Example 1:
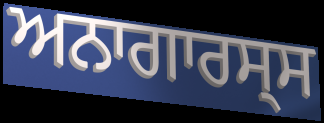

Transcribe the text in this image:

ਅਨਾਗਾਰਸ੍ਸ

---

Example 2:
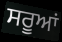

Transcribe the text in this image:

ਸਰੂਆਂ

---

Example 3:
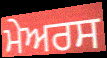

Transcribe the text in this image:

ਮੇਅਰਸ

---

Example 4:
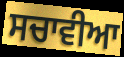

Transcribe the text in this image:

ਸਚਾਵੀਆ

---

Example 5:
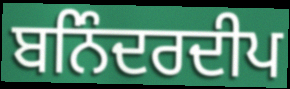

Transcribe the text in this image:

ਬਨਿੰਦਰਦੀਪ